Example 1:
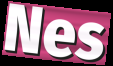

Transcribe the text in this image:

Nes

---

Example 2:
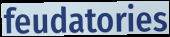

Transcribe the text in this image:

feudatories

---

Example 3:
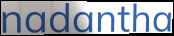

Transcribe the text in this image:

nadantha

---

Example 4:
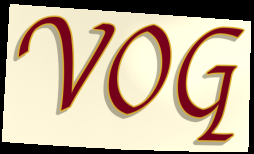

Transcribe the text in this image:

VOG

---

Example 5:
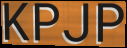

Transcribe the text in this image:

KPJP